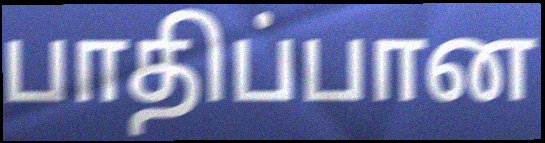
பாதிப்பான